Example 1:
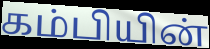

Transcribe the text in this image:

கம்பியின்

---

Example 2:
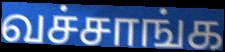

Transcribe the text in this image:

வச்சாங்க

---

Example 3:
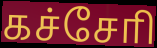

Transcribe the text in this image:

கச்சேரி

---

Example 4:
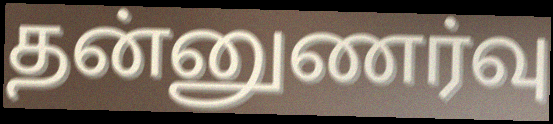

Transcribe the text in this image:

தன்னுணர்வு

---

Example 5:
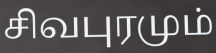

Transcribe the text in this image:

சிவபுரமும்